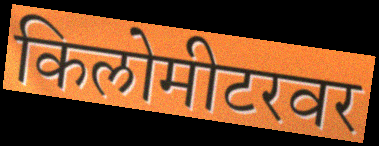
किलोमीटरवर